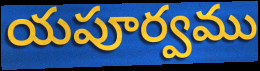
యపూర్వము